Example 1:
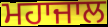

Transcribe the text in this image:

ਮਹਾਜਾਲ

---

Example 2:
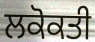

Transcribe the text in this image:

ਲਕੋਕਤੀ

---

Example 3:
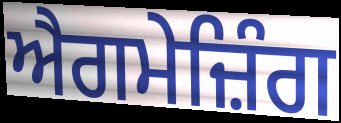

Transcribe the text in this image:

ਐਗਮੇਜ਼ਿੰਗ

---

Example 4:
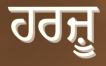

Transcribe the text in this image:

ਹਰਜ਼ੂ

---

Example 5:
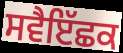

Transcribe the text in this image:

ਸਵੈਇੱਛਕ